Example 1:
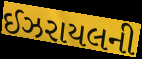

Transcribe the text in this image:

ઈઝરાયલની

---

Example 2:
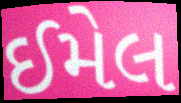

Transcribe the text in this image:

ઈમેલ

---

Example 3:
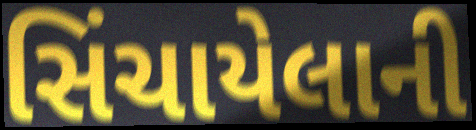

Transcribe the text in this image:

સિંચાયેલાની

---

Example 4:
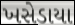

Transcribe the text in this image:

ખસેડાયા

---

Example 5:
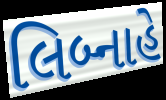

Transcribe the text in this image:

લિબ્નાહે